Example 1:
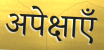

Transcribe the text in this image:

अपेक्षाएँ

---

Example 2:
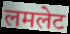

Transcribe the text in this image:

लमलेट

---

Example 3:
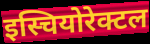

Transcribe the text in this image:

इस्चियोरेक्टल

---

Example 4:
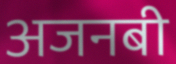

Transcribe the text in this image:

अजनबी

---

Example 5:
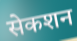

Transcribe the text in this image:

सेकशन